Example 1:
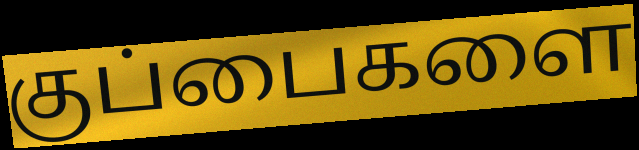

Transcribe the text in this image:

குப்பைகளை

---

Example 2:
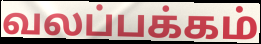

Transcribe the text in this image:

வலப்பக்கம்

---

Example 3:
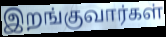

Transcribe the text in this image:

இறங்குவார்கள்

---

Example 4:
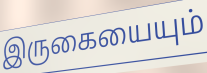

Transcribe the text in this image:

இருகையையும்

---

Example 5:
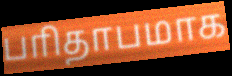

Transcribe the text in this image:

பரிதாபமாக